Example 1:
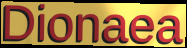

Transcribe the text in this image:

Dionaea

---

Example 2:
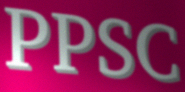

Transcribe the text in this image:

PPSC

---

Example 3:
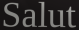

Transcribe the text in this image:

Salut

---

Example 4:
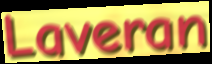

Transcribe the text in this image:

Laveran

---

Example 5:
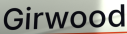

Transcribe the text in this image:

Girwood